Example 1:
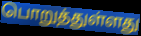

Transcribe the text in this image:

பொறுத்துள்ளது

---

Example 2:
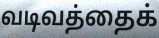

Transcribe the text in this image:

வடிவத்தைக்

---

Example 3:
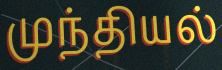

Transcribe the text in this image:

முந்தியல்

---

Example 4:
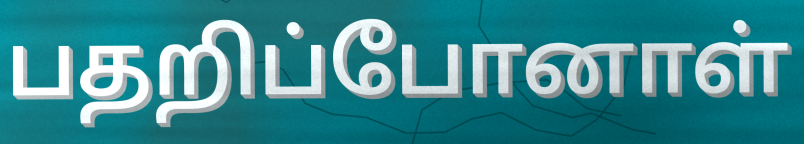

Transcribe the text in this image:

பதறிப்போனாள்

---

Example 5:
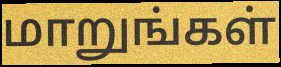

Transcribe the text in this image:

மாறுங்கள்